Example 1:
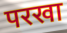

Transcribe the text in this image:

परखा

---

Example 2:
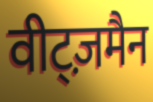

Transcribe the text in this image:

वीट्ज़मैन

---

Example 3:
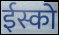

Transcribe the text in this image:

ईस्को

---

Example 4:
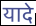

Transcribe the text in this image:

यादे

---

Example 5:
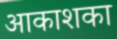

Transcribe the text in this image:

आकाशका